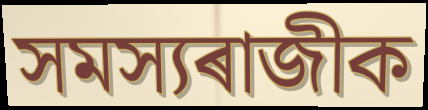
সমস্যৰাজীক